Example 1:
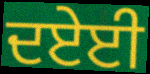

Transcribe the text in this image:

ਦਏਈ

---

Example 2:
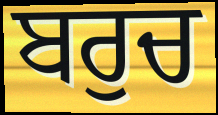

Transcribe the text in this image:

ਬਰੁਚ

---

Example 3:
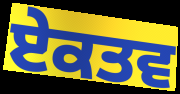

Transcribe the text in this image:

ਏਕਤਵ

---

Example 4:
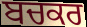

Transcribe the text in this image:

ਬਚਕਰ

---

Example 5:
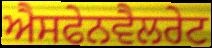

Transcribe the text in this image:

ਐਸਫੇਨਵੈਲਰੇਟ